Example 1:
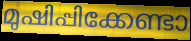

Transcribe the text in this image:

മുഷിപ്പിക്കേണ്ടാ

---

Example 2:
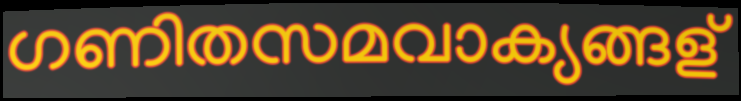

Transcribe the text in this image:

ഗണിതസമവാക്യങ്ങള്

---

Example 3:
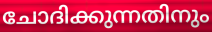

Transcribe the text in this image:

ചോദിക്കുന്നതിനും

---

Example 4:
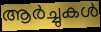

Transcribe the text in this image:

ആർച്ചുകൾ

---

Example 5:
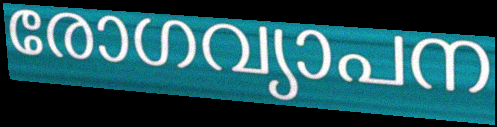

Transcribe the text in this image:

രോഗവ്യാപന